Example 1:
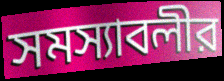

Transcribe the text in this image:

সমস্যাবলীর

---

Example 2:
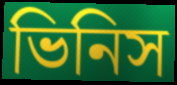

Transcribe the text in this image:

ভিনিস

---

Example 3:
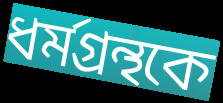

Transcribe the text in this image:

ধর্মগ্রন্থকে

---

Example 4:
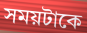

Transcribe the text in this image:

সময়টাকে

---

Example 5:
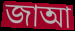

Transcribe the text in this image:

জাআ